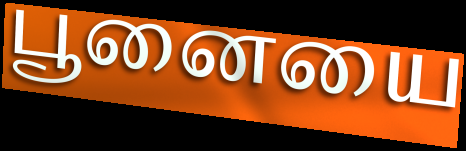
பூனையை